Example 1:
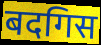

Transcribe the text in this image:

बदगिस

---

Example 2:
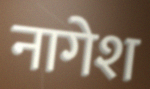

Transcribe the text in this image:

नागेश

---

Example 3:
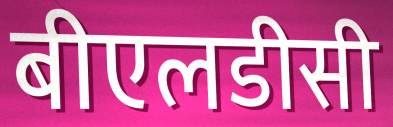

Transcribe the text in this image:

बीएलडीसी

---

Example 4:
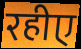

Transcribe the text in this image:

रहीए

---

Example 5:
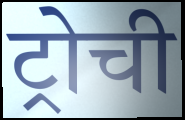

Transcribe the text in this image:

ट्रोची